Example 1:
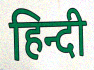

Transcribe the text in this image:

हिन्दी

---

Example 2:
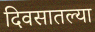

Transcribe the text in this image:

दिवसातल्या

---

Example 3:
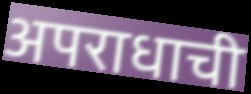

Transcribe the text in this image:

अपराधाची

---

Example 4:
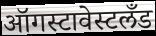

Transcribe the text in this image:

ऑगस्टावेस्टलँड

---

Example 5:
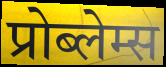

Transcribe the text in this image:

प्रोब्लेम्स